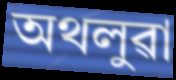
অথলুৱা